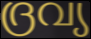
ദ്രവ്യ